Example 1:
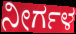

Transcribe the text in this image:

ನೀರ್ಗಳ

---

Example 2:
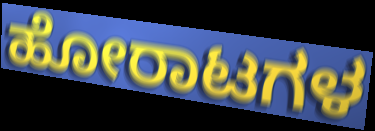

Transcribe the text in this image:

ಹೋರಾಟಗಳ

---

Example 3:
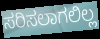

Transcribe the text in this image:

ಸರಿಸಲಾಗಲಿಲ್ಲ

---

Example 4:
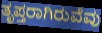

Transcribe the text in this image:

ತೃಪ್ತರಾಗಿರುವೆವು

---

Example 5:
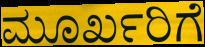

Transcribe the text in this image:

ಮೂರ್ಖರಿಗೆ